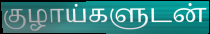
குழாய்களுடன்